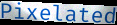
Pixelated